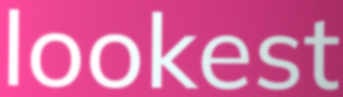
lookest